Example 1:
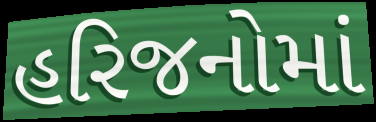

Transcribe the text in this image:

હરિજનોમાં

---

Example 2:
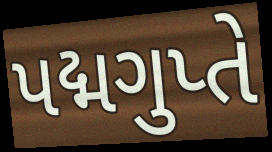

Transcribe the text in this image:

પદ્મગુપ્તે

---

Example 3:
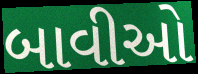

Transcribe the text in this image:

બાવીઓ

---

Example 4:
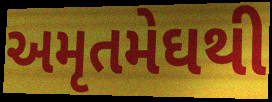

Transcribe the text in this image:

અમૃતમેઘથી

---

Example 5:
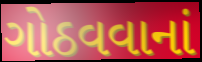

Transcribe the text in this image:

ગોઠવવાનાં